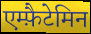
एम्फ़ैटेमिन